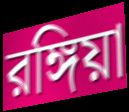
রঙ্গিয়া